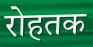
रोहतक